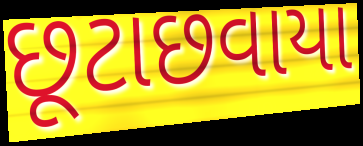
છૂટાછવાયા